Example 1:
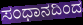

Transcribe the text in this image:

ಸಂಧಾನದಿಂದ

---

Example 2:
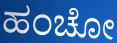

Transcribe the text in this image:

ಹಂಚೋ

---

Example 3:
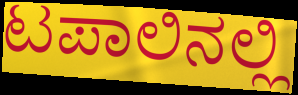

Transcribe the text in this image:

ಟಪಾಲಿನಲ್ಲಿ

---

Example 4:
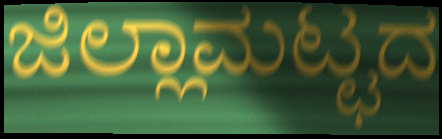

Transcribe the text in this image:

ಜಿಲ್ಲಾಮಟ್ಟದ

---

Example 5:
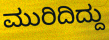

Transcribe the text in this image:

ಮುರಿದಿದ್ದು